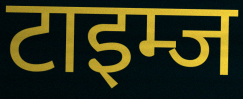
टाइम्ज